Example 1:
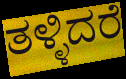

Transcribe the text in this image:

ತಳ್ಳಿದರೆ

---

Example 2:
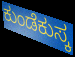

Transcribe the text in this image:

ಕುಂಡೆಕುಸ್ಕ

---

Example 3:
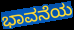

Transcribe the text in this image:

ಭಾವನೆಯ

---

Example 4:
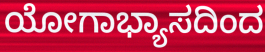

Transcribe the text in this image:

ಯೋಗಾಭ್ಯಾಸದಿಂದ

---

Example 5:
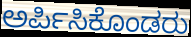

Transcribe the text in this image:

ಅರ್ಪಿಸಿಕೊಂಡರು